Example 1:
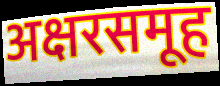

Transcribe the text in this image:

अक्षरसमूह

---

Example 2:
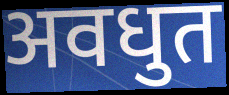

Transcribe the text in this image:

अवधुत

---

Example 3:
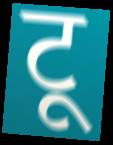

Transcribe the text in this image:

टू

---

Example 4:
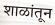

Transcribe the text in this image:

शाळांतून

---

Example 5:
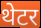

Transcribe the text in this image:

थेटर